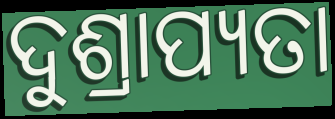
ଦୁଶ୍ରାପ୍ୟତା